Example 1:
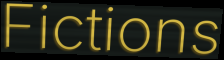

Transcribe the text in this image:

Fictions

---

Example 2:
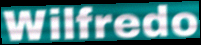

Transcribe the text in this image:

Wilfredo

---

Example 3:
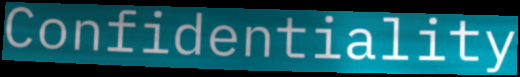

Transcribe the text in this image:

Confidentiality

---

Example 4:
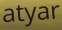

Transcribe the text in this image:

atyar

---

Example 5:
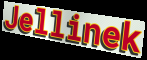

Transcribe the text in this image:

Jellinek